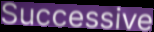
Successive